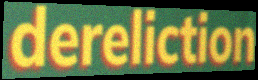
dereliction